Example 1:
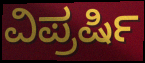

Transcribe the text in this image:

ವಿಪ್ರರ್ಷಿ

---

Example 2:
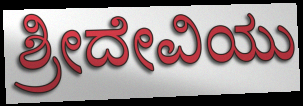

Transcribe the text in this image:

ಶ್ರೀದೇವಿಯು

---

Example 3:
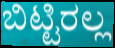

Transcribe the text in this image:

ಬಿಟ್ಟಿರಲ್ಲ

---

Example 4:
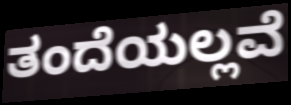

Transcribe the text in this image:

ತಂದೆಯಲ್ಲವೆ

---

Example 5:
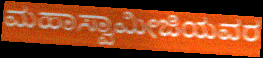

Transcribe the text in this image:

ಮಹಾಸ್ವಾಮೀಜಿಯವರ